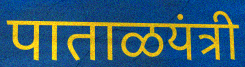
पाताळयंत्री